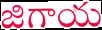
జిగాయ